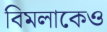
বিমলাকেও